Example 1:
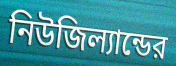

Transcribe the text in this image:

নিউজিল্যান্ডের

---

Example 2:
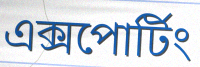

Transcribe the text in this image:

এক্সপোর্টিং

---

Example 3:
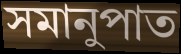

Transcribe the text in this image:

সমানুপাত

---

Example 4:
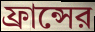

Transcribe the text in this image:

ফ্রান্সের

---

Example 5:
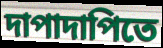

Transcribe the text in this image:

দাপাদাপিতে